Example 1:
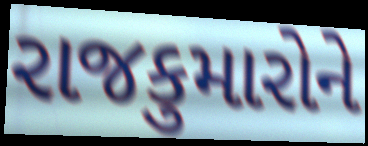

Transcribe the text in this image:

રાજકુમારોને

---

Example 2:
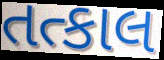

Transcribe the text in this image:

તત્કાલ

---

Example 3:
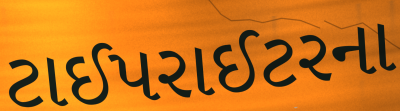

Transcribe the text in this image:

ટાઈપરાઈટરના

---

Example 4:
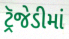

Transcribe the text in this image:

ટ્રૅજેડીમાં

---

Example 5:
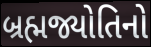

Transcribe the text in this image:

બ્રહ્મજ્યોતિનો